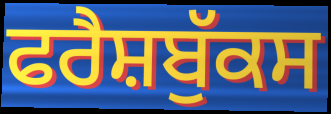
ਫਰੈਸ਼ਬੁੱਕਸ